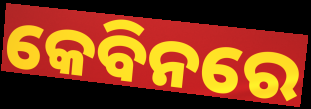
କେବିନରେ